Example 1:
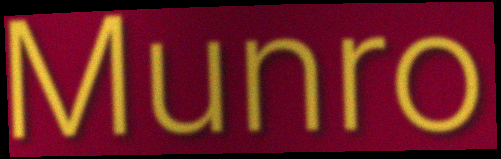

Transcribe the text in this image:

Munro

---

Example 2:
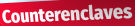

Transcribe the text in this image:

Counterenclaves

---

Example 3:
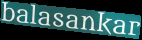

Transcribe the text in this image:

balasankar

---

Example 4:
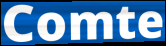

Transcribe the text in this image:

Comte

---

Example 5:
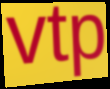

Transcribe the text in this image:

vtp